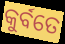
କୁର୍ବତେ